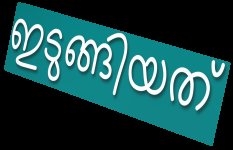
ഇടുങ്ങിയത്